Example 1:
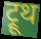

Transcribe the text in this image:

ट्रूथ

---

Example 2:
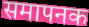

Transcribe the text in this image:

समापनक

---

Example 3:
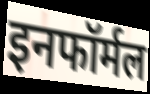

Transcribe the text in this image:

इनफॉर्मल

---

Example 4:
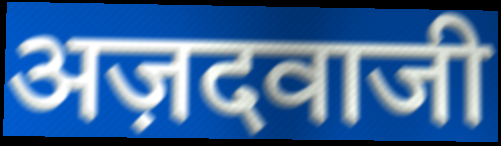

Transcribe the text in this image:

अज़दवाजी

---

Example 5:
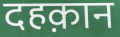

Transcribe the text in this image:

दहक़ान